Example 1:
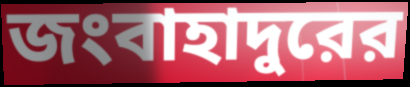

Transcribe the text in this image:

জংবাহাদুরের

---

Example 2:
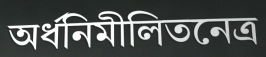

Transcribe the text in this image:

অর্ধনিমীলিতনেত্র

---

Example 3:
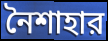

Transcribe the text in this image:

নৈশাহার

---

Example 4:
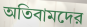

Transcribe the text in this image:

অতিবামদের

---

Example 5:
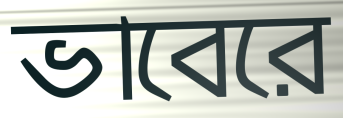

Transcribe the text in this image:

ভাবেরে